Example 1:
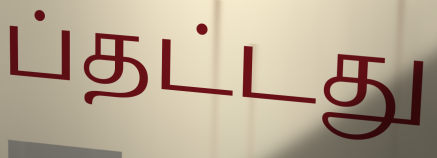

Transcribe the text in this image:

ப்தட்டது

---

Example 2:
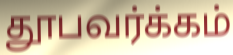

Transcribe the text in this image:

தூபவர்க்கம்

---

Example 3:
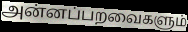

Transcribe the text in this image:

அன்னப்பறவைகளும்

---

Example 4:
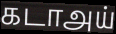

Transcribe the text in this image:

கடாஅய்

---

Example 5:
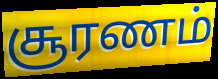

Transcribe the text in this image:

சூரணம்